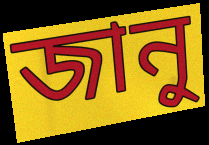
জানু